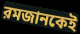
রমজানকেই